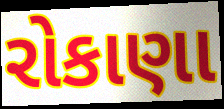
રોકાણા